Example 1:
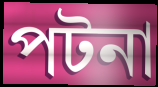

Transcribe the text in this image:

পটনা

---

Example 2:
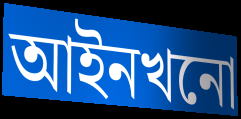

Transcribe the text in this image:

আইনখনো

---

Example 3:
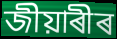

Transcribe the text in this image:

জীয়াৰীৰ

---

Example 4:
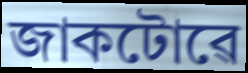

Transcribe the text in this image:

জাকটোৱে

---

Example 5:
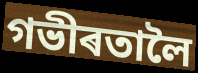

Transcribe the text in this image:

গভীৰতালৈ